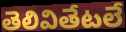
తెలివితేటలే